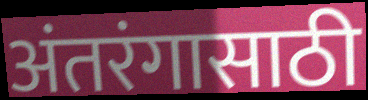
अंतरंगासाठी